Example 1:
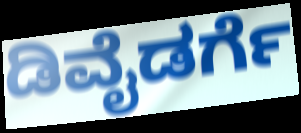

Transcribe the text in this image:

ಡಿವೈಡರ್ಗೆ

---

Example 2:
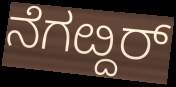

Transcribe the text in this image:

ನೆಗೞ್ದರ್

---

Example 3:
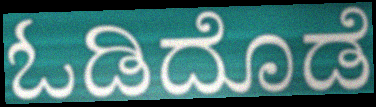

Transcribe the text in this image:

ಓಡಿದೊಡೆ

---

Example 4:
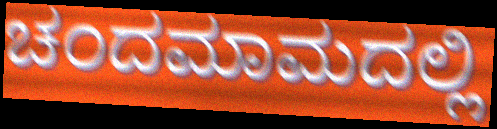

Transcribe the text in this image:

ಚಂದಮಾಮದಲ್ಲಿ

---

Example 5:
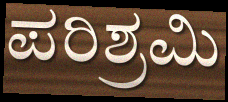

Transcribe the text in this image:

ಪರಿಶ್ರಮಿ